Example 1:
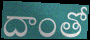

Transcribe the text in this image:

దాంతో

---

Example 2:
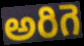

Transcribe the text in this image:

అరిగె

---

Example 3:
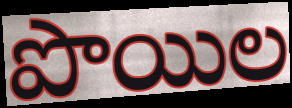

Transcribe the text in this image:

పొయిల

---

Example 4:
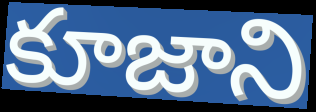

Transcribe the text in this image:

కూజాని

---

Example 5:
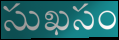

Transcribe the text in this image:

సుఖసం